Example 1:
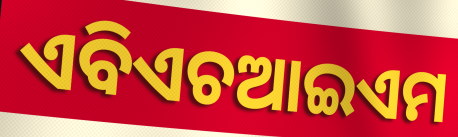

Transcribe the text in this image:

ଏବିଏଚଆଇଏମ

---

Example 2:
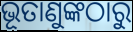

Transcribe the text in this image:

ଭୂତାଣୁଙ୍କଠାରୁ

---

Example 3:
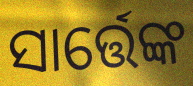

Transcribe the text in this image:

ସାର୍ତ୍ତେଙ୍କ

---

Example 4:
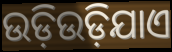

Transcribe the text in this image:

ଉଡ଼ିଉଡ଼ିଯାଏ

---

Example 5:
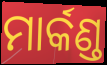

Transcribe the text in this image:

ମାର୍କଣ୍ଡ